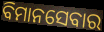
ବିମାନସେବାର